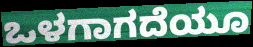
ಒಳಗಾಗದೆಯೂ